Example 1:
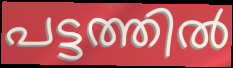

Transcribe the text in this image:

പട്ടത്തിൽ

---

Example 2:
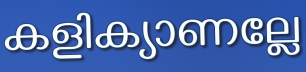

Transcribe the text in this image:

കളിക്യാണല്ലേ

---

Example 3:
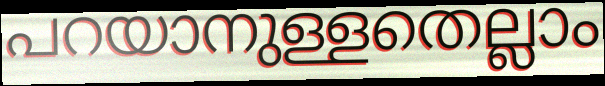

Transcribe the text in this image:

പറയാനുള്ളതെല്ലാം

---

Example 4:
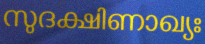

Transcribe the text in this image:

സുദക്ഷിണാഖ്യഃ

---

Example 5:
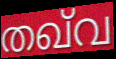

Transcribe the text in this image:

തഖ്‌വ